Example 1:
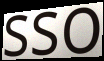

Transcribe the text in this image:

sso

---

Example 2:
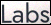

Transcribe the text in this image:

Labs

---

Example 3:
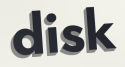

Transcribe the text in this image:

disk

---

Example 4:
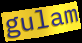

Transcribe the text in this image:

gulam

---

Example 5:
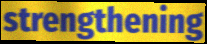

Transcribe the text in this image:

strengthening